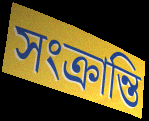
সংক্রান্তি